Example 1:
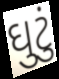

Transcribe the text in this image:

ઘુટું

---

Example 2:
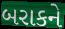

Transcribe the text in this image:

બરાકને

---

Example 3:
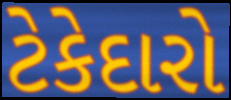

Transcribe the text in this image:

ટેકેદારો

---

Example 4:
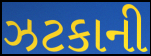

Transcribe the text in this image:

ઝટકાની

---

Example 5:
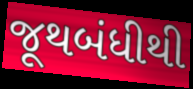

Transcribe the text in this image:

જૂથબંધીથી